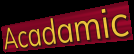
Acadamic